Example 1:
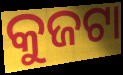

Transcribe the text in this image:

କୁଜଟା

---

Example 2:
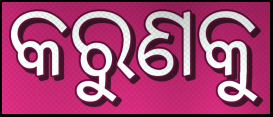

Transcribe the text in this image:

କରୁଣକୁ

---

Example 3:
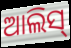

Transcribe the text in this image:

ଆଲିସ୍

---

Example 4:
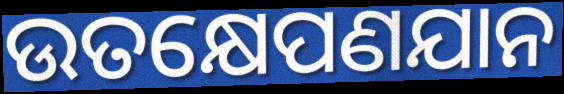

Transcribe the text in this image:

ଉତକ୍ଷେପଣଯାନ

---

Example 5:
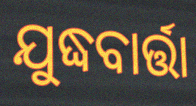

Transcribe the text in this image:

ଯୁଦ୍ଧବାର୍ତ୍ତା